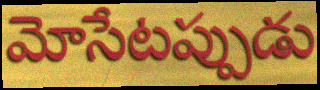
మోసేటప్పుడు